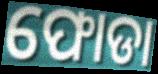
ଫୋଡା